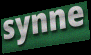
synne